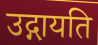
उद्गायति